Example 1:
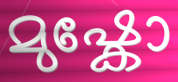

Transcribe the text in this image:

മുഷ്കോ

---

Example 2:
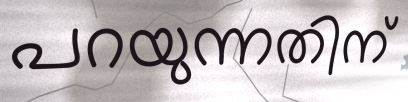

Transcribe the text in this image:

പറയുന്നതിന്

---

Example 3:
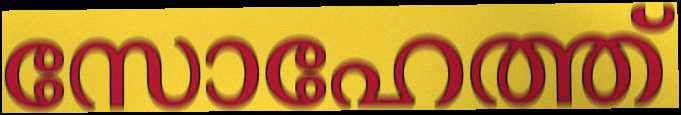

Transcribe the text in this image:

സോഹേത്ത്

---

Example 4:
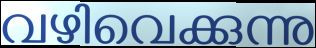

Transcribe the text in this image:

വഴിവെക്കുന്നു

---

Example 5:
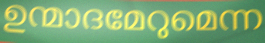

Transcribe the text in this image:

ഉന്മാദമേറുമെന്ന